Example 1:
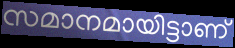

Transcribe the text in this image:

സമാനമായിട്ടാണ്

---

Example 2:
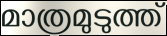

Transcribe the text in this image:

മാത്രമുടുത്ത്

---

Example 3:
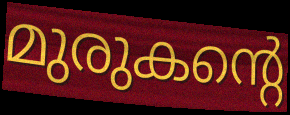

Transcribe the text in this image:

മുരുകന്റെ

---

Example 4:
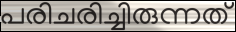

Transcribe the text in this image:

പരിചരിച്ചിരുന്നത്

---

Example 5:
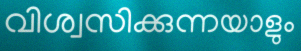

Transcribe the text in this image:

വിശ്വസിക്കുന്നയാളും